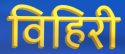
विहिरी